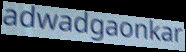
adwadgaonkar